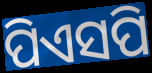
ପିଏସପି